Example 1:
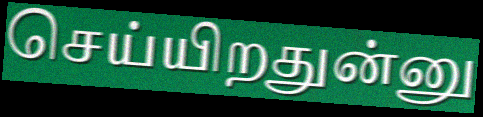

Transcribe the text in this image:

செய்யிறதுன்னு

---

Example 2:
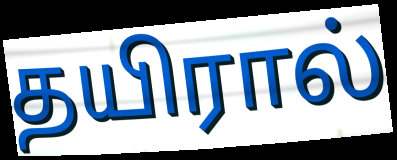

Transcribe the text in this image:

தயிரால்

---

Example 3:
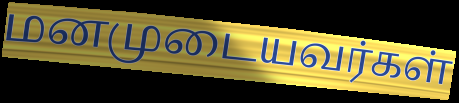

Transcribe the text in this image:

மனமுடையவர்கள்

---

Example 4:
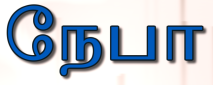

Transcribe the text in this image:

நேபா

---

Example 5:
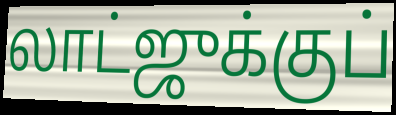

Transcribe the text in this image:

லாட்ஜுக்குப்